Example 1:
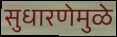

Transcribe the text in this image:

सुधारणेमुळे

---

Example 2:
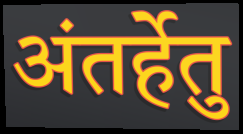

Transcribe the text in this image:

अंतर्हेतु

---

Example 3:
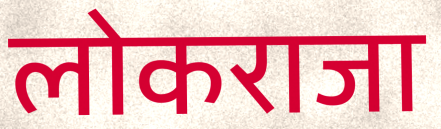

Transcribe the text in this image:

लोकराजा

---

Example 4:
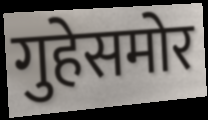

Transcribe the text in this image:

गुहेसमोर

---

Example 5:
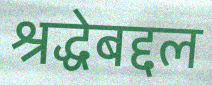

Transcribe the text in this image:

श्रद्धेबद्दल